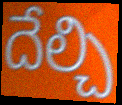
దేల్చి